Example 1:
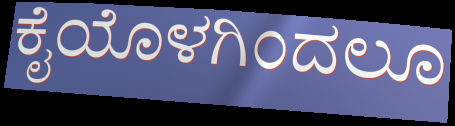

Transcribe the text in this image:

ಕೈಯೊಳಗಿಂದಲೂ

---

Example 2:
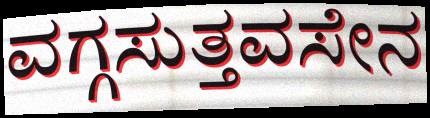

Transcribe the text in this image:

ವಗ್ಗಸುತ್ತವಸೇನ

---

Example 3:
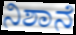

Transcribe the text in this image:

ನಿಶಾನೆ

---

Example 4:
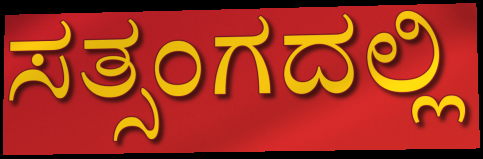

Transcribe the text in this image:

ಸತ್ಸಂಗದಲ್ಲಿ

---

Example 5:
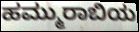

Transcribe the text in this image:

ಹಮ್ಮುರಾಬಿಯ